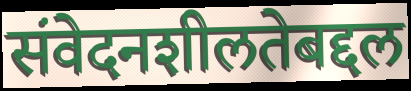
संवेदनशीलतेबद्दल